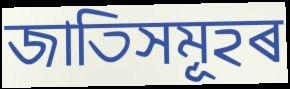
জাতিসমূহৰ